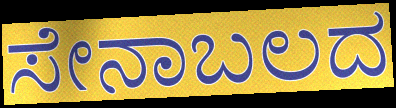
ಸೇನಾಬಲದ